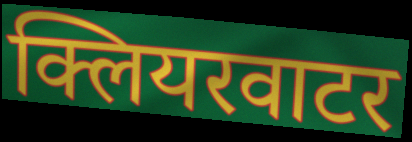
क्लियरवाटर